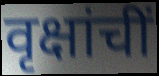
वृक्षांचीं